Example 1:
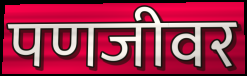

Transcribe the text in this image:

पणजीवर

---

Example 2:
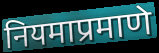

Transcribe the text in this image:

नियमाप्रमाणे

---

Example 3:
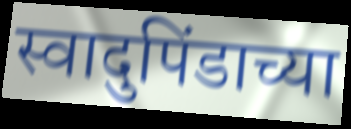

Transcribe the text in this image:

स्वादुपिंडाच्या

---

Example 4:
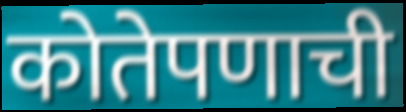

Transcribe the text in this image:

कोतेपणाची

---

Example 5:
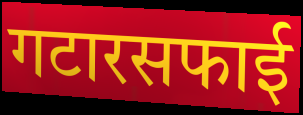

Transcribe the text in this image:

गटारसफाई